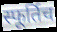
स्फूर्तिच